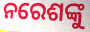
ନରେଶଙ୍କୁ